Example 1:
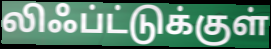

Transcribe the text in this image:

லிஃப்ட்டுக்குள்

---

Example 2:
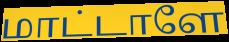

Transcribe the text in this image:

மாட்டாளே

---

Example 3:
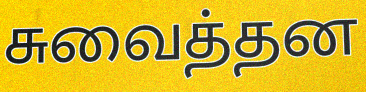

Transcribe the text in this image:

சுவைத்தன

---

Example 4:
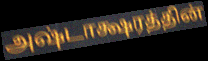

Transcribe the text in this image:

அஷ்டாக்ஷரத்தின்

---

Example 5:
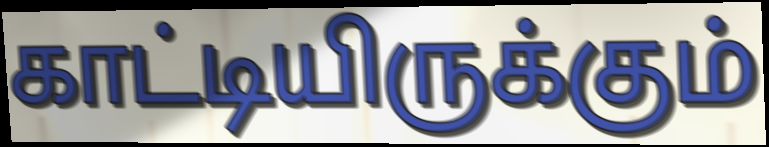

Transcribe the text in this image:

காட்டியிருக்கும்